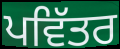
ਪਵਿੱਤਰ